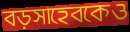
বড়সাহেবকেও